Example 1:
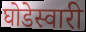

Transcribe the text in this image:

घोडेस्वारी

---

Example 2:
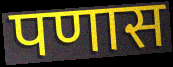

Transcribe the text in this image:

पणास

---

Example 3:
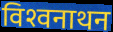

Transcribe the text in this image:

विश्वनाथन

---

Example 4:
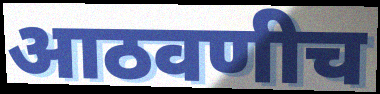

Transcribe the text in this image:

आठवणीच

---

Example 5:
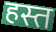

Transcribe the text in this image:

हस्त